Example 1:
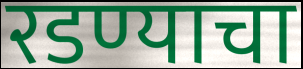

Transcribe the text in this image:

रडण्याचा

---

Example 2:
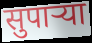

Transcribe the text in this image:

सुपार्‍या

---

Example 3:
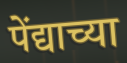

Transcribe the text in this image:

पेंद्याच्या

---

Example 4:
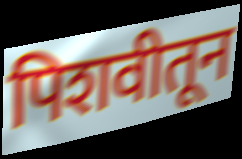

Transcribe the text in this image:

पिशवीतून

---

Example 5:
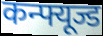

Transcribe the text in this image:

कन्फ्यूज्ड